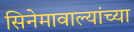
सिनेमावाल्यांच्या